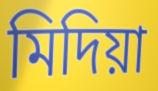
মিদিয়া